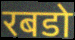
रबडो